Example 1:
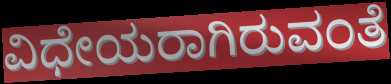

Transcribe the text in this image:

ವಿಧೇಯರಾಗಿರುವಂತೆ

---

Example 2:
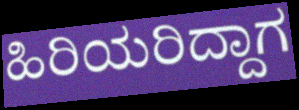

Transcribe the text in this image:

ಹಿರಿಯರಿದ್ದಾಗ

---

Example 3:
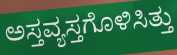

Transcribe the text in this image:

ಅಸ್ತವ್ಯಸ್ತಗೊಳಿಸಿತ್ತು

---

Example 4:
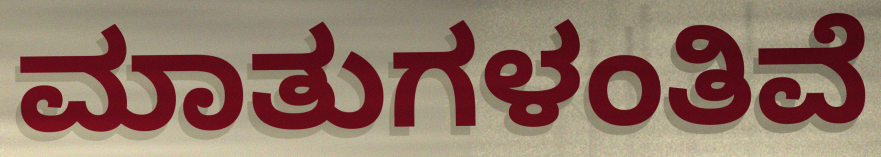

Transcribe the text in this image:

ಮಾತುಗಳಂತಿವೆ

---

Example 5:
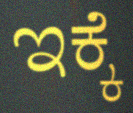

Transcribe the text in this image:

ಇಕ್ಕೆ